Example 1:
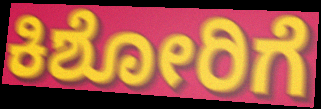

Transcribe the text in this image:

ಕಿಶೋರಿಗೆ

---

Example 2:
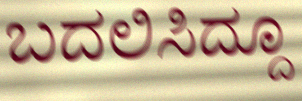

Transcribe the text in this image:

ಬದಲಿಸಿದ್ದೂ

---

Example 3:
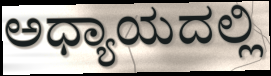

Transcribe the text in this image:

ಅಧ್ಯಾಯದಲ್ಲಿ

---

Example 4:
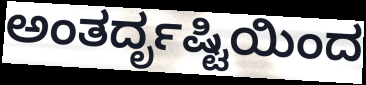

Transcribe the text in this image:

ಅಂತರ್ದೃಷ್ಟಿಯಿಂದ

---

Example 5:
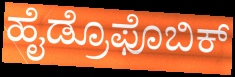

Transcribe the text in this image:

ಹೈಡ್ರೊಫೊಬಿಕ್